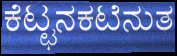
ಕೆಟ್ಟನಕಟೆನುತ